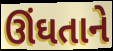
ઊંઘતાને